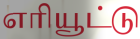
எரியூட்டு